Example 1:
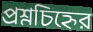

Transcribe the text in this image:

প্রশ্নচিহ্নের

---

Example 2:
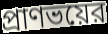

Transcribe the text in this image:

প্রাণভয়ের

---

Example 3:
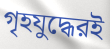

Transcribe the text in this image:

গৃহযুদ্ধেরই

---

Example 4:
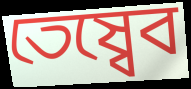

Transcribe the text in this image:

তেষ্বেব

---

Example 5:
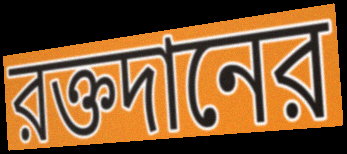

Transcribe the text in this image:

রক্তদানের